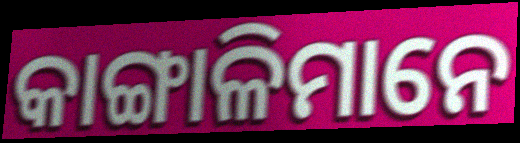
କାଙ୍ଗାଳିମାନେ